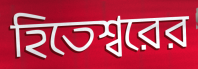
হিতেশ্বরের